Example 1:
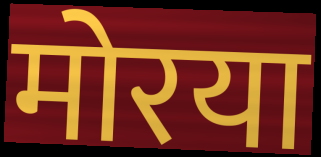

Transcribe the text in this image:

मोरया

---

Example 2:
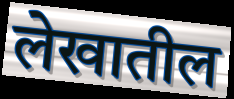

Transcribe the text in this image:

लेखातील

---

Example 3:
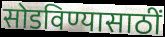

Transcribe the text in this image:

सोडविण्यासाठीं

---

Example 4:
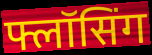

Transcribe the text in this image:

फ्लॉसिंग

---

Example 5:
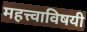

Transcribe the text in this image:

महत्त्वाविषयी